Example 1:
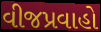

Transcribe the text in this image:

વીજપ્રવાહો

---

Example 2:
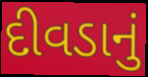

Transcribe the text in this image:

દીવડાનું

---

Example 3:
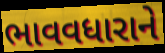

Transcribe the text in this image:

ભાવવધારાને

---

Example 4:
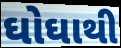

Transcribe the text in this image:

ઘોઘાથી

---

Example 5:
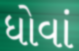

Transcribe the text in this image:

ધોવાં